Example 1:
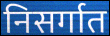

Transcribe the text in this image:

निसर्गात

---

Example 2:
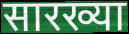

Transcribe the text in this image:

सारख्या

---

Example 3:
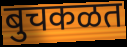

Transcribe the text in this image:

बुचकळत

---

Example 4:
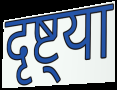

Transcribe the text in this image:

दृष्ट्या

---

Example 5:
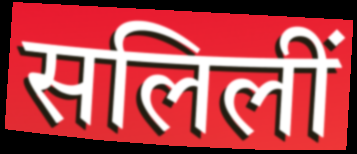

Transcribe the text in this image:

सलिलीं